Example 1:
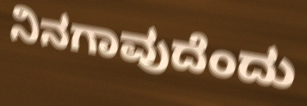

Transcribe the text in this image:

ನಿನಗಾವುದೆಂದು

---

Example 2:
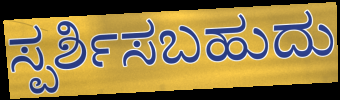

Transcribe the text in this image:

ಸ್ಪರ್ಶಿಸಬಹುದು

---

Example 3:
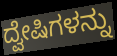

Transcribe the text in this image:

ದ್ವೇಷಿಗಳನ್ನು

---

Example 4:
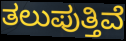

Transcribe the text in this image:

ತಲುಪುತ್ತಿವೆ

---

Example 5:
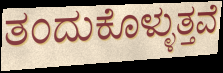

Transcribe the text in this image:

ತಂದುಕೊಳ್ಳುತ್ತವೆ